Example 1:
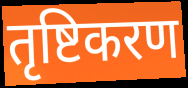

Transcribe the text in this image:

तृष्टिकरण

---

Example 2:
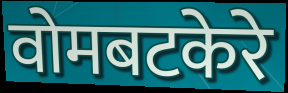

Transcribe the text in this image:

वोमबटकेरे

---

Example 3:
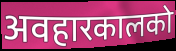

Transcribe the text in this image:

अवहारकालको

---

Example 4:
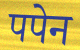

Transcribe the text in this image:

पपेन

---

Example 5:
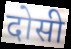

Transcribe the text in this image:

दोसी